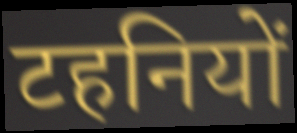
टहनियों